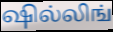
ஷில்லிங்